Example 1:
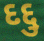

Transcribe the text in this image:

દદ્દુ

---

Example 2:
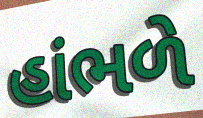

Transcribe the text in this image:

હાંભળે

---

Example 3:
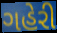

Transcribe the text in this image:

ગહેરી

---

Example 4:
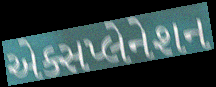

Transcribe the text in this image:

એક્સપ્લેનેશન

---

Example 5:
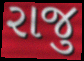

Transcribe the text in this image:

રાજુ